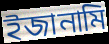
ইজানামি